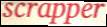
scrapper